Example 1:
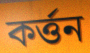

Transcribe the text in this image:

কর্ত্তন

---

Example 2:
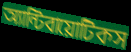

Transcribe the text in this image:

অ্যান্টিবায়োটিকস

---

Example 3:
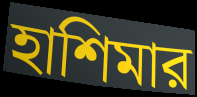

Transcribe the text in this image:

হাশিমার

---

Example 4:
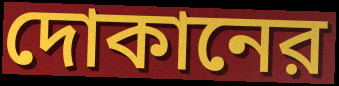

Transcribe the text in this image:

দোকানের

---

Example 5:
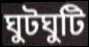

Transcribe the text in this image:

ঘুটঘুটি